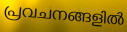
പ്രവചനങ്ങളിൽ